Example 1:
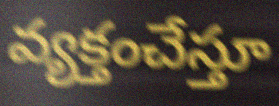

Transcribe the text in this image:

వ్యక్తంచేస్తూ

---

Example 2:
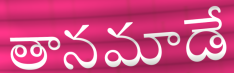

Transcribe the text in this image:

తానమాడే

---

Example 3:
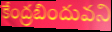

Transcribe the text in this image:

కేంద్రబిందువని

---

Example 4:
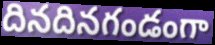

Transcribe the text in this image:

దినదినగండంగా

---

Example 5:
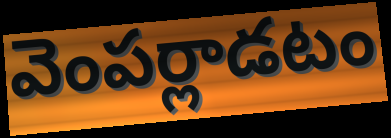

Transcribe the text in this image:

వెంపర్లాడటం